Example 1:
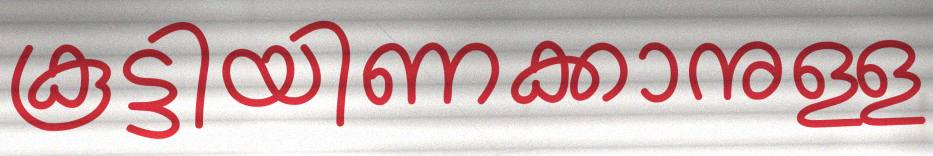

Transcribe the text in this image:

കൂട്ടിയിണക്കാനുള്ള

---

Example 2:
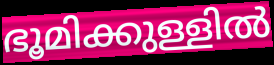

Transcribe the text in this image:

ഭൂമിക്കുള്ളിൽ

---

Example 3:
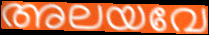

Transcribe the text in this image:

അലയവേ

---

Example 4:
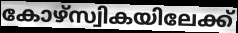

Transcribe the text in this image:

കോഴ്സ്വികയിലേക്ക്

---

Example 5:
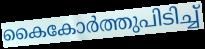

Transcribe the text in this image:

കൈകോർത്തുപിടിച്ച്